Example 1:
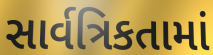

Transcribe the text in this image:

સાર્વત્રિકતામાં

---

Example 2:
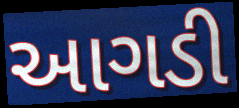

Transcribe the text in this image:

આગડી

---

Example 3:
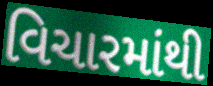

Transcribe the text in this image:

વિચારમાંથી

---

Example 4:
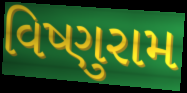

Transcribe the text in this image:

વિષ્ણુરામ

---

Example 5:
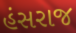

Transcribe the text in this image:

હંસરાજ